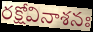
రక్షోవినాశనః